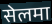
सेलमा